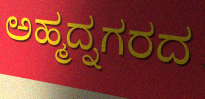
ಅಹ್ಮದ್ನಗರದ